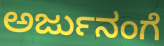
ಅರ್ಜುನಂಗೆ